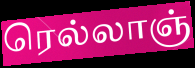
ரெல்லாஞ்